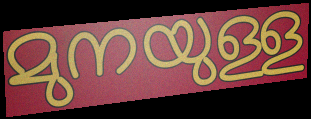
മുനയുള്ള